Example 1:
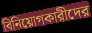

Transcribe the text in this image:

বিনিয়োগকারীদের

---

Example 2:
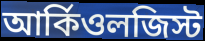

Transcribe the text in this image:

আর্কিওলজিস্ট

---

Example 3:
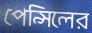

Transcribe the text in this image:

পেন্সিলের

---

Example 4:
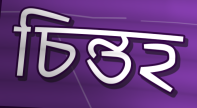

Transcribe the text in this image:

চিন্তহ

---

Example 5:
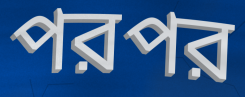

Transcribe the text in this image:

পরপর